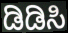
ಡಿಡಿಸಿ